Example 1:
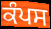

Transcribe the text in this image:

ਕੰਪਸ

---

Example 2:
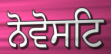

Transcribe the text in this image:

ਨੋਵੋਸਟਿ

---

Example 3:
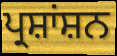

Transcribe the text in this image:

ਪ੍ਰਸ਼ਾਂਸ਼ਨ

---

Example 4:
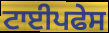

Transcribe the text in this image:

ਟਾਈਪਫੇਸ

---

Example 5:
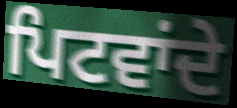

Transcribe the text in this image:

ਪਿਟਵਾਂਦੇ